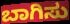
ಬಾಗಿಸು